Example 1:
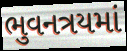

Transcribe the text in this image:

ભુવનત્રયમાં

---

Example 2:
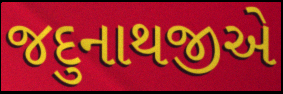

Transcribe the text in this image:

જદુનાથજીએ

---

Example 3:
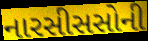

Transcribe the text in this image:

નારસીસસોની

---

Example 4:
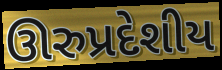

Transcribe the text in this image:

ઊરુપ્રદેશીય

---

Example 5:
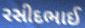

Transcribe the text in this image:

રસીદભાઈ